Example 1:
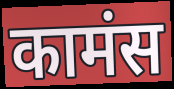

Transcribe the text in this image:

कामंस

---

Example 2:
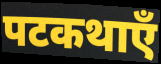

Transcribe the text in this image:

पटकथाएँ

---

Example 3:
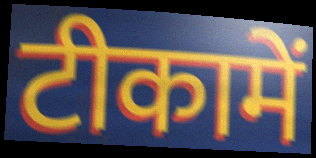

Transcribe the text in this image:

टीकामें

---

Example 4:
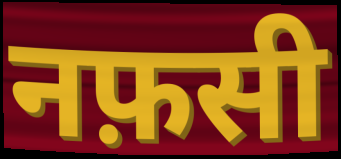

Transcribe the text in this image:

नफ़सी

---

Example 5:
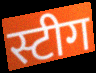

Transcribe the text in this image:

स्टीग